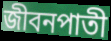
জীবনপাতী